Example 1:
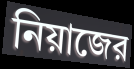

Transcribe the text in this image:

নিয়াজের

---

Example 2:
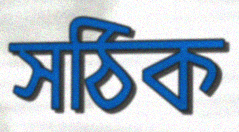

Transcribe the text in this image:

সঠিক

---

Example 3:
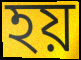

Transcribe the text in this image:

হয়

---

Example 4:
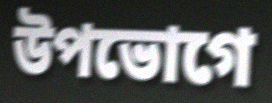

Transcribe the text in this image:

উপভোগে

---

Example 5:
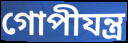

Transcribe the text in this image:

গোপীযন্ত্র